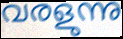
വരളുന്നു